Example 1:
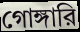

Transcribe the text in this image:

গোঙ্গারি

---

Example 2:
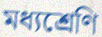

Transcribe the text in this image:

মধ্যশ্রেণি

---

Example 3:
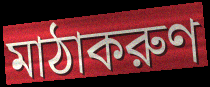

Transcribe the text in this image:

মাঠাকরুণ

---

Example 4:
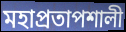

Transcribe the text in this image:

মহাপ্রতাপশালী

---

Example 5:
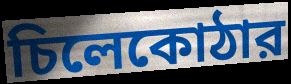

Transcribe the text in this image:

চিলেকোঠার